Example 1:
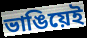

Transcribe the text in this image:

ভাঙিয়েই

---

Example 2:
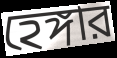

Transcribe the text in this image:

হেঙ্গার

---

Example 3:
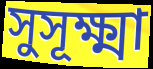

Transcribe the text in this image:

সুসূক্ষ্মা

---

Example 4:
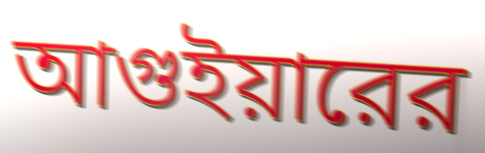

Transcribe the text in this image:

আগুইয়ারের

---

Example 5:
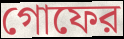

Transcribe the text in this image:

গোফের